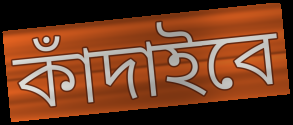
কাঁদাইবে